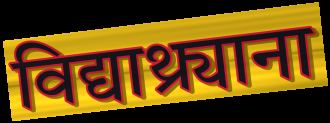
विद्याथ्र्याना